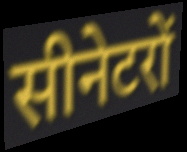
सीनेटरों